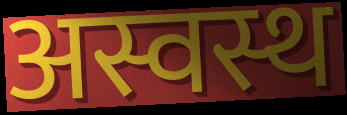
अस्वस्थ